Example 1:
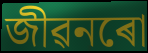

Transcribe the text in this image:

জীৱনৰো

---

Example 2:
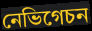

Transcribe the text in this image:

নেভিগেচন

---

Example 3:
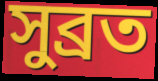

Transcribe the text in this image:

সুব্ৰত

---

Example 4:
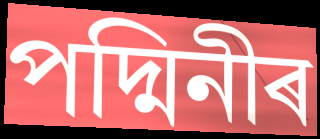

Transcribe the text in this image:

পদ্মিনীৰ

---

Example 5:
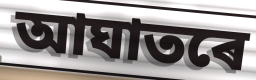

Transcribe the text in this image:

আঘাতৰে